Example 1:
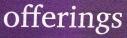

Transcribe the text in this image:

offerings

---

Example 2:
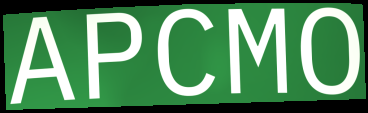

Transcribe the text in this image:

APCMO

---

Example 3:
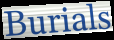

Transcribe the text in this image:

Burials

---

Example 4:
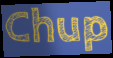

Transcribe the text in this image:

Chup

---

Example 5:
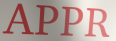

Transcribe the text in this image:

APPR